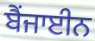
ਬੈਂਜਾਈਨ